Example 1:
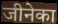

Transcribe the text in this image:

जीनेका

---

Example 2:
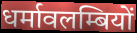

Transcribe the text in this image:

धर्मावलम्बियों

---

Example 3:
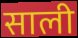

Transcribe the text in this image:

साली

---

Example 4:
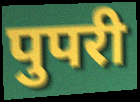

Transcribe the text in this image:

पुपरी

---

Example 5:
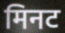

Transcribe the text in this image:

मिनट